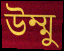
উম্মু